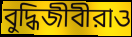
বুদ্ধিজীবীরাও